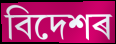
বিদেশৰ